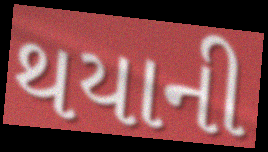
થયાની